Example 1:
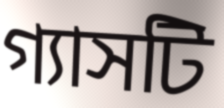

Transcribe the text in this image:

গ্যাসটি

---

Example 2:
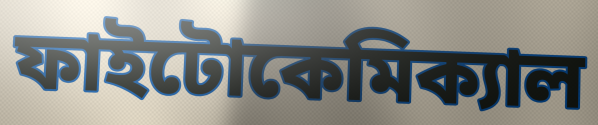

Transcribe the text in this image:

ফাইটোকেমিক্যাল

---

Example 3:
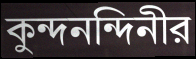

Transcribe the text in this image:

কুন্দনন্দিনীর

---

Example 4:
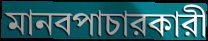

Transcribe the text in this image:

মানবপাচারকারী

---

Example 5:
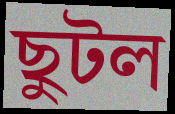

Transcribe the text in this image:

ছুটল